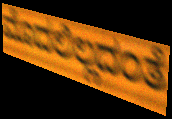
ಮೊದಲಿಲ್ಲದಂತೆ